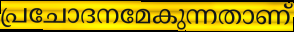
പ്രചോദനമേകുന്നതാണ്